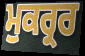
ਮੁਕਰ੍ਰਰ